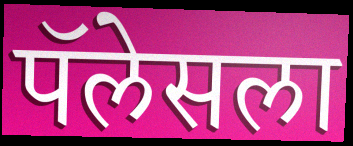
पॅलेसला